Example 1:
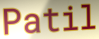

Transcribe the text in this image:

Patil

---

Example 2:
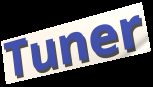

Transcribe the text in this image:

Tuner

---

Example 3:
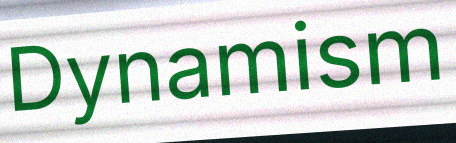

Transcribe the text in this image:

Dynamism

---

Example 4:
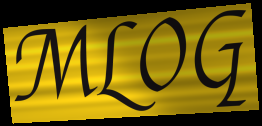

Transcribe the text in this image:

MLOG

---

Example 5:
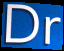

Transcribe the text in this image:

Dr